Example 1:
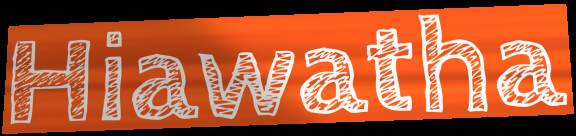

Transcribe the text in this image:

Hiawatha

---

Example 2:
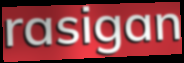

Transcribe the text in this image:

rasigan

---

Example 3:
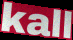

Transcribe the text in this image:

kall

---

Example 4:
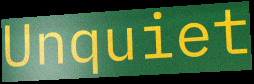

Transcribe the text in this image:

Unquiet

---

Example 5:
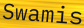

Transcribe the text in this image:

Swamis